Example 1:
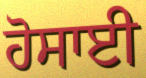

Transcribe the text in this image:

ਹੋਸਾਈ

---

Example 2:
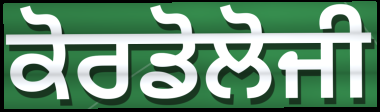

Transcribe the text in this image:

ਕੋਰਡੋਲੋਜੀ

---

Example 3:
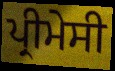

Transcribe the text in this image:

ਪ੍ਰੀਮੇਸੀ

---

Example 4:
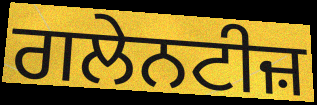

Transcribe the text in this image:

ਗਲੇਨਟੀਜ਼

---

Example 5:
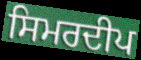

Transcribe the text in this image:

ਸਿਮਰਦੀਪ